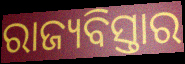
ରାଜ୍ୟବିସ୍ତାର